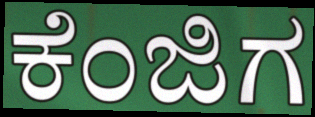
ಕೆಂಜಿಗ